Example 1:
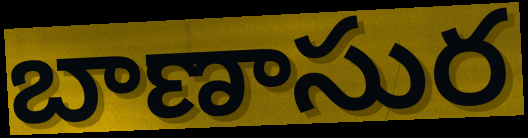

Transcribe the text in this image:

బాణాసుర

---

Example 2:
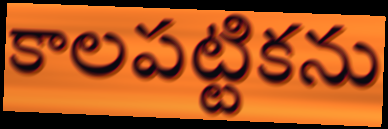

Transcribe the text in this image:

కాలపట్టికను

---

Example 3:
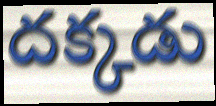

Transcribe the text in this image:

దక్కడు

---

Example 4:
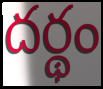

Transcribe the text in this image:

దర్థం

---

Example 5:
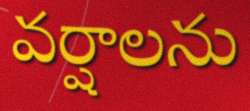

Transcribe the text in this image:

వర్షాలను